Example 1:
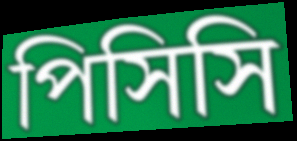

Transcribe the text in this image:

পিসিসি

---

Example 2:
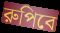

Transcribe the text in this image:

রুপিবে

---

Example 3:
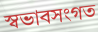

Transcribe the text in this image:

স্বভাবসংগত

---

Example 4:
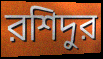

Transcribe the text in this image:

রশিদুর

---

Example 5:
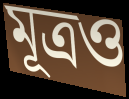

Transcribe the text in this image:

মূত্রও